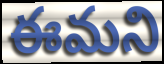
ఈమని